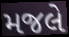
મજલે